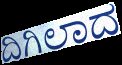
ದಿಗಿಲಾದ